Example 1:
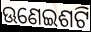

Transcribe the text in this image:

ଊଣେଇଶଟି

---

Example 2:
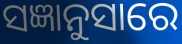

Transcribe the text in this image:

ସଜ୍ଞାନୁସାରେ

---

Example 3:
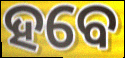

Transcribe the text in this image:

ହବେ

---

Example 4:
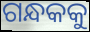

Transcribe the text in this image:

ଗନ୍ଧକକୁ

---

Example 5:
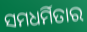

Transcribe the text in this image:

ସମଧର୍ମିତାର